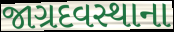
જાગ્રદવસ્થાના